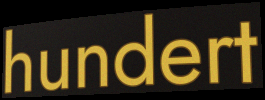
hundert